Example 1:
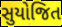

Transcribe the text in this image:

સુયોજિત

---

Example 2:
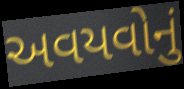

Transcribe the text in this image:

અવયવોનું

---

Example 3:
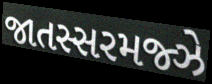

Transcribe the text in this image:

જાતસ્સરમજ્ઝે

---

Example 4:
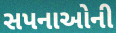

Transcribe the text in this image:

સપનાઓની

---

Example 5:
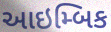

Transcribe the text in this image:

આઇમ્બિક